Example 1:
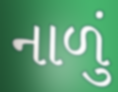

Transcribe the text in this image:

નાળું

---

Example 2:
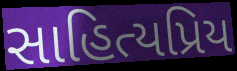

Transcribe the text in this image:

સાહિત્યપ્રિય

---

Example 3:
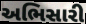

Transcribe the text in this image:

અભિસારી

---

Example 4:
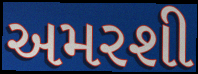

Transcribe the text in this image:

અમરશી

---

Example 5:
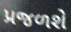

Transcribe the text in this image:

પ્રજળશે